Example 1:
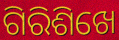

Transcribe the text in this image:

ଗିରିଶିଖେ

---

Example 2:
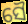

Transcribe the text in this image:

ସୈ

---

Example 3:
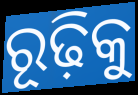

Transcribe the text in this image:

ରୂଢ଼ିକୁ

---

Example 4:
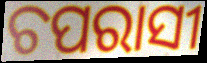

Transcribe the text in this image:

ଚପରାସୀ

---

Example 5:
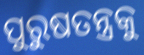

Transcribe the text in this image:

ପୁରୁଷତନ୍ତ୍ରକୁ